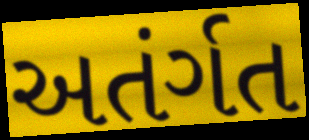
અતંર્ગત